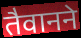
तैवानने